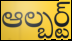
ఆల్బర్ట్